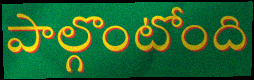
పాల్గొంటోంది